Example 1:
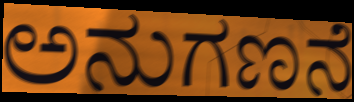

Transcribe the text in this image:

ಅನುಗಣನೆ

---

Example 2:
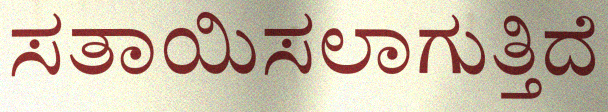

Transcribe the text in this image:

ಸತಾಯಿಸಲಾಗುತ್ತಿದೆ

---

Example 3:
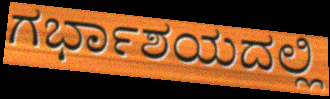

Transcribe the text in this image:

ಗರ್ಭಾಶಯದಲ್ಲಿ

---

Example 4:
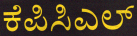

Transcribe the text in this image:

ಕೆಪಿಸಿಎಲ್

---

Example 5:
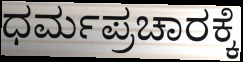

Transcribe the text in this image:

ಧರ್ಮಪ್ರಚಾರಕ್ಕೆ